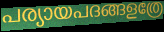
പര്യായപദങ്ങളത്രേ